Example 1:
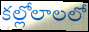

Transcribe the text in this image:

కల్లోలాలలో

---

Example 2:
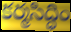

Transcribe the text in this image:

కర్మసిద్ధిం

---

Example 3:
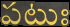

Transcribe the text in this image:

పటుః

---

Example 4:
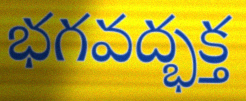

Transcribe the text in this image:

భగవద్భక్త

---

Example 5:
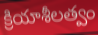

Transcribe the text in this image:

క్రియాశీలత్వం